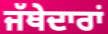
ਜੱਥੇਦਾਰਾਂ